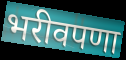
भरीवपणा